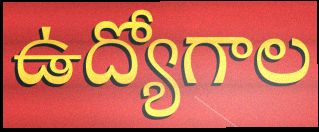
ఉద్యోగాల